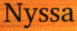
Nyssa